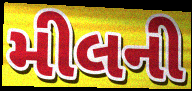
મીલની